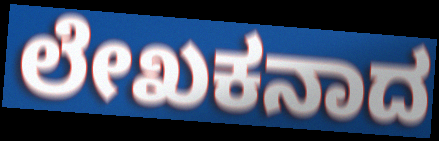
ಲೇಖಕನಾದ